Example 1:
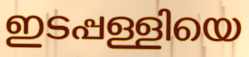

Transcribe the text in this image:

ഇടപ്പള്ളിയെ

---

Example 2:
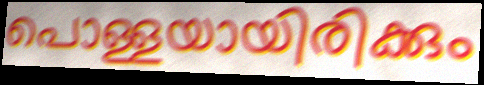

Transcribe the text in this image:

പൊള്ളയായിരിക്കും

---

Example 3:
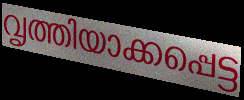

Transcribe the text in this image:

വൃത്തിയാക്കപ്പെട്ട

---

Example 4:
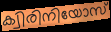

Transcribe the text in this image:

ക്വിരിനിയോസ്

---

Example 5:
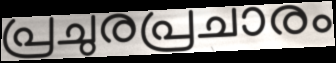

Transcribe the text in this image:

പ്രചുരപ്രചാരം